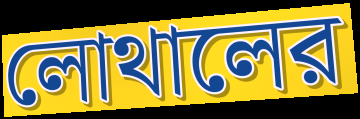
লোথালের